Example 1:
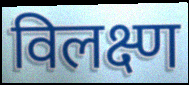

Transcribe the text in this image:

विलक्ष्ण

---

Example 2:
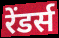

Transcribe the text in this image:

रेंडर्स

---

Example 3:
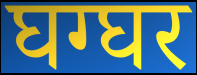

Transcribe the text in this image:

घग्घर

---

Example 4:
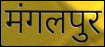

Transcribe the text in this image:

मंगलपुर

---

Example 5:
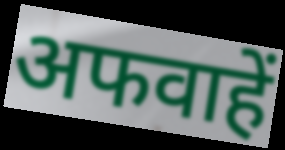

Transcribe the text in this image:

अफवाहें